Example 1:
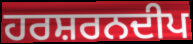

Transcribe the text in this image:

ਹਰਸ਼ਰਨਦੀਪ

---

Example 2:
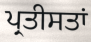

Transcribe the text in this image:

ਪ੍ਰਤੀਸਤਾਂ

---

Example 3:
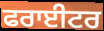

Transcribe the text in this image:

ਫਰਾਈਟਰ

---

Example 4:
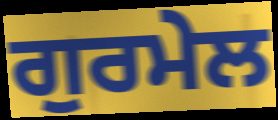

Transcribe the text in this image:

ਗੁਰਮੇਲ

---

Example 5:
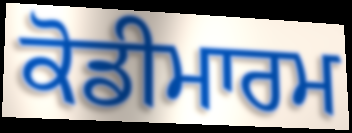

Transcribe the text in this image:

ਕੋਡੀਮਾਰਮ